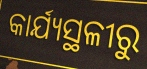
କାର୍ଯ୍ୟସ୍ଥଳୀରୁ